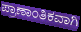
ಪ್ರಾಣಾಂತಿಕವಾಗಿ